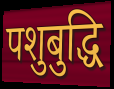
पशुबुद्धि